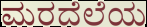
ಮರದೆಲೆಯ